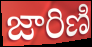
జారిణి